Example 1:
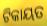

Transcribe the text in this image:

ଟିକାୟତ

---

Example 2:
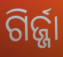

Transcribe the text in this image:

ଗିର୍ଜ୍ଜା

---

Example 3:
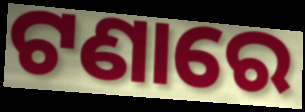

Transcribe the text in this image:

ଟଣାରେ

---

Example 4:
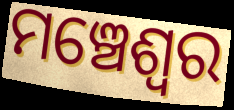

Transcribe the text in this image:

ମଞ୍ଚେଶ୍ଵର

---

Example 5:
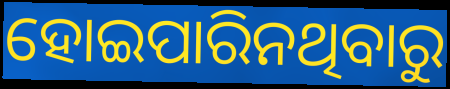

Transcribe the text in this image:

ହୋଇପାରିନଥିବାରୁ